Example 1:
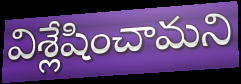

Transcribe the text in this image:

విశ్లేషించామని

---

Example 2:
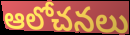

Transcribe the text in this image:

ఆలోచనలు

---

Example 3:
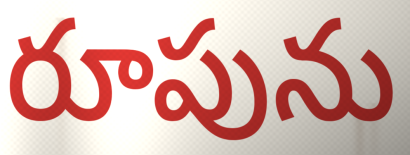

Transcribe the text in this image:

రూపును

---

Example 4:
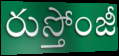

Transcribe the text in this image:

రుస్తోంజీ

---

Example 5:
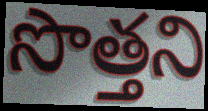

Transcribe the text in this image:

సొత్తని